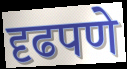
दृढपणे